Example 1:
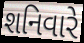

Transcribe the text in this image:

શનિવારે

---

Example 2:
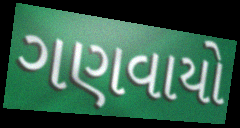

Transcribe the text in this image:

ગણવાયો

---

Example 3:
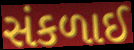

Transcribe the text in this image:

સંકળાઈ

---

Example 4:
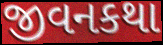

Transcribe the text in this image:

જીવનકથા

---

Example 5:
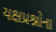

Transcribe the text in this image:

યક્ષપ્રશ્નોના